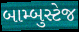
બામ્બુસ્ટેજ